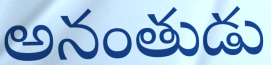
అనంతుడు